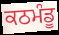
ਕਠਮੰਡੂ